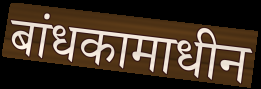
बांधकामाधीन